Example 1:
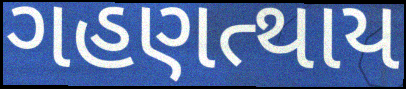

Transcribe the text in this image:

ગહણત્થાય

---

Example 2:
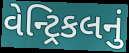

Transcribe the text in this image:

વેન્ટ્રિકલનું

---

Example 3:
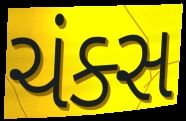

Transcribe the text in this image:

ચંક્સ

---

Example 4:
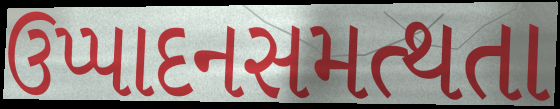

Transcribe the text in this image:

ઉપ્પાદનસમત્થતા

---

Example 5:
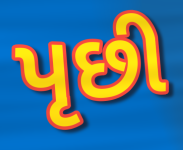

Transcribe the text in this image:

પૃછી